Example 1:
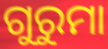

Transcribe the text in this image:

ଗୁରୁମା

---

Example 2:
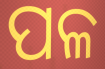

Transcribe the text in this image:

ପଳ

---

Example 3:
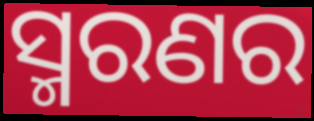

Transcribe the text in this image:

ସ୍ମରଣର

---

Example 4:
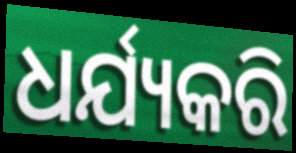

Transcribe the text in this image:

ଧର୍ଯ୍ୟକରି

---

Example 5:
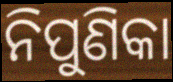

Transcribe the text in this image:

ନିପୁଣିକା